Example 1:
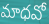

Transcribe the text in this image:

మాధవో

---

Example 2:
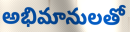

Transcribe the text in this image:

అభిమానులతో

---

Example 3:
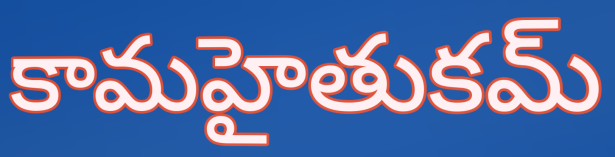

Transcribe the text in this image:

కామహైతుకమ్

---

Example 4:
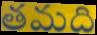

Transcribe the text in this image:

తమది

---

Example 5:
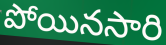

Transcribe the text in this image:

పోయినసారి